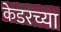
केडरच्या